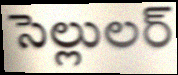
సెల్లులర్